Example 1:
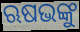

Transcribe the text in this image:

ଋଷଭଙ୍କୁ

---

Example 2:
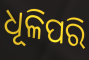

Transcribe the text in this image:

ଧୂଳିପରି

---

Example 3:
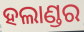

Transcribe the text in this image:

ହଲାଣ୍ଡର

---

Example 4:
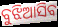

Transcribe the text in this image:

ବୁଝିଆସିବ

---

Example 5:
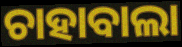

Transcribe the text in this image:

ଚାହାବାଲା